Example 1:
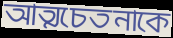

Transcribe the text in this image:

আত্মচেতনাকে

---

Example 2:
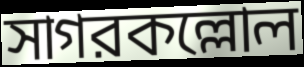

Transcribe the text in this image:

সাগরকল্লোল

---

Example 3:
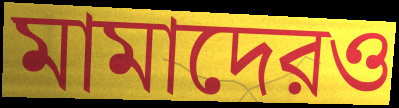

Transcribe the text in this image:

মামাদেরও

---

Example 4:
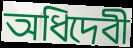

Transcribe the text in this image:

অধিদেবী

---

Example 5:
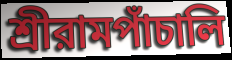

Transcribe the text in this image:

শ্রীরামপাঁচালি